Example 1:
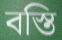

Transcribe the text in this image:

বস্তি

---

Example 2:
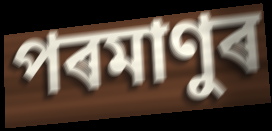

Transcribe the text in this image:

পৰমাণুৰ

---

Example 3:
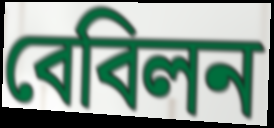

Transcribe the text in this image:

বেবিলন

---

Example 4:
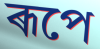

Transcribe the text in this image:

ৰূপে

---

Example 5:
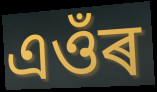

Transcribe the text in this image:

এওঁৰ